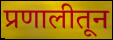
प्रणालीतून